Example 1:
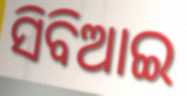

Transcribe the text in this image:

ସିବିଆଇ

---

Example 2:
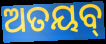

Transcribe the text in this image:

ଅତୟବ୍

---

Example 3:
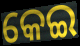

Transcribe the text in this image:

କେଇ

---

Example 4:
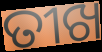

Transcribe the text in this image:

ତୀଖ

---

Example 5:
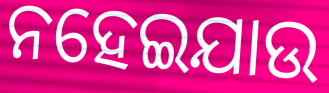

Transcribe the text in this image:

ନହେଇଯାଉ